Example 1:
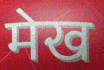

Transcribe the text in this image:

मेख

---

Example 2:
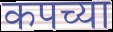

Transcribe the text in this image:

कपच्या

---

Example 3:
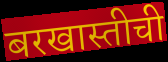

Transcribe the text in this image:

बरखास्तीची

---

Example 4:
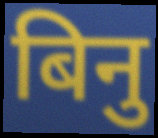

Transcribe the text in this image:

बिनु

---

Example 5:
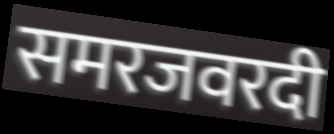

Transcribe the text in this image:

समरजवरदी